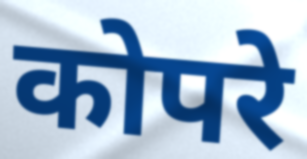
कोपरे